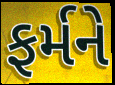
ફર્મને